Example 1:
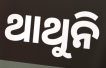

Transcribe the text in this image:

ଥାଥୁନି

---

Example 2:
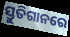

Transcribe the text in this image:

ସ୍ତୁତିଗାନରେ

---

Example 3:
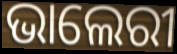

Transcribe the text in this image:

ଭାଲେରୀ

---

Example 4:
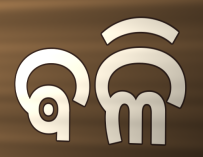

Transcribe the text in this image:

ଵଳି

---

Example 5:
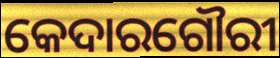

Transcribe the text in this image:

କେଦାରଗୌରୀ